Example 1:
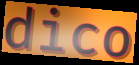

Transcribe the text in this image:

dico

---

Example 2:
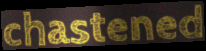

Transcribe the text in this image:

chastened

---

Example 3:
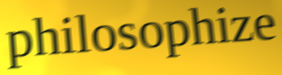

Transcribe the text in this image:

philosophize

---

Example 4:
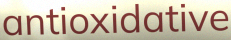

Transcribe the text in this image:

antioxidative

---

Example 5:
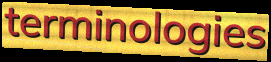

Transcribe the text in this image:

terminologies